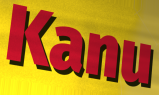
Kanu